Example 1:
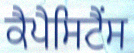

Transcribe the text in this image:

ਕੈਪੈਸਿਟੈਂਸ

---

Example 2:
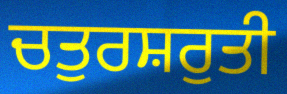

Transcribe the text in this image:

ਚਤੁਰਸ਼ਰੁਤੀ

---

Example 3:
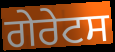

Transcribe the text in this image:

ਗੇਰੇਟਸ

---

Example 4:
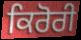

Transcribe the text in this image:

ਕਿਰੋਰੀ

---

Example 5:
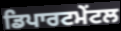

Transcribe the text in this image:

ਡਿਪਾਰਟਮੇਂਟਲ